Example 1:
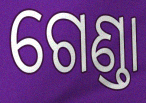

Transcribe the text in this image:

ଗେଣ୍ଡା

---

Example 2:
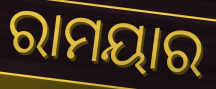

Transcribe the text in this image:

ରାମୟାର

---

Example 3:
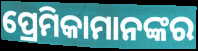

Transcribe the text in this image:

ପ୍ରେମିକାମାନଙ୍କର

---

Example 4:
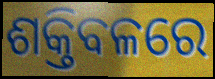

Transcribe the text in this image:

ଶକ୍ତିବଳରେ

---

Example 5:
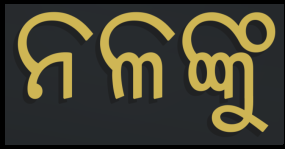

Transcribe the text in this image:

ନଳଙ୍କୁ